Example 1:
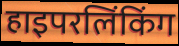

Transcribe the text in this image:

हाइपरलिंकिंग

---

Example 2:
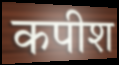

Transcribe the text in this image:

कपीश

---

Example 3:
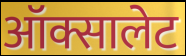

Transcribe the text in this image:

ऑक्सालेट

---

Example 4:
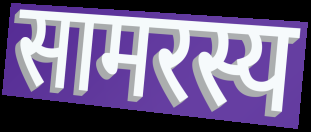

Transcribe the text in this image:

सामरस्य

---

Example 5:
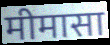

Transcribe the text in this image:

मीमासा